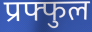
प्रफ्फुल